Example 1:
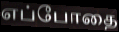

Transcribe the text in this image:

எப்போதை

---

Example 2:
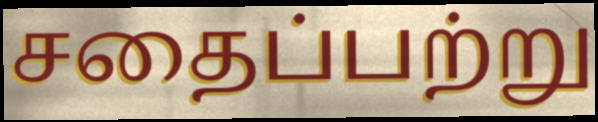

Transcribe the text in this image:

சதைப்பற்று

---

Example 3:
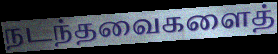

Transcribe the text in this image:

நடந்தவைகளைத்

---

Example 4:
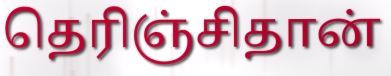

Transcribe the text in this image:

தெரிஞ்சிதான்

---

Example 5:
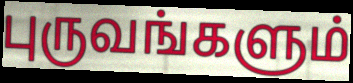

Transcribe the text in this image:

புருவங்களும்